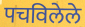
पचविलेले